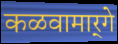
कळवामार्गे